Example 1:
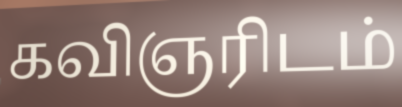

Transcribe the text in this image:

கவிஞரிடம்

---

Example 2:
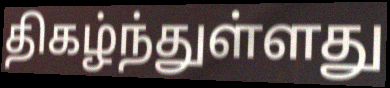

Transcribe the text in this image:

திகழ்ந்துள்ளது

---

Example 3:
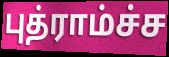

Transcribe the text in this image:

புத்ராம்ச்ச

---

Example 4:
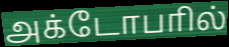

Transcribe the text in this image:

அக்டோபரில்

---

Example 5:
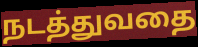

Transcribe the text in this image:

நடத்துவதை